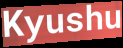
Kyushu